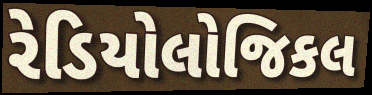
રેડિયોલોજિકલ